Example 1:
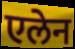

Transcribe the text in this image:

एलेन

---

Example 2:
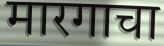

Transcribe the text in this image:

मारगाचा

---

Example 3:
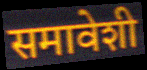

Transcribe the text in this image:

समावेशी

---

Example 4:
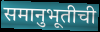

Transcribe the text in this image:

समानुभूतीची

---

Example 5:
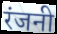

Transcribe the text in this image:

रंजनी